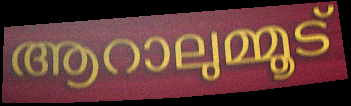
ആറാലുമ്മൂട്